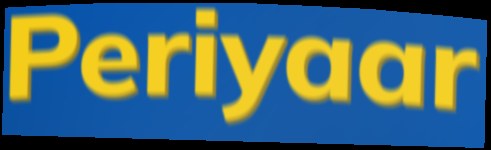
Periyaar